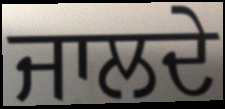
ਜਾਲਦੇ